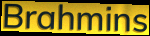
Brahmins